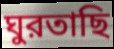
ঘুরতাছি